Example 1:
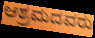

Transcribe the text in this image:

ಆಶ್ರಮದವರು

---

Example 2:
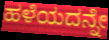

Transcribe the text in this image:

ಹಳೆಯದನ್ನೇ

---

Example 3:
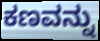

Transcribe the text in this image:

ಕಣವನ್ನು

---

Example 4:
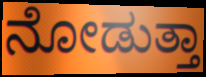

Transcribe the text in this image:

ನೋಡುತ್ತಾ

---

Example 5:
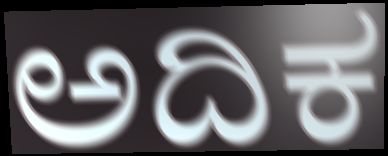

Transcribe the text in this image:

ಅದಿಕ